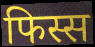
फिस्स